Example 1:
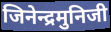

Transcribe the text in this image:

जिनेन्द्रमुनिजी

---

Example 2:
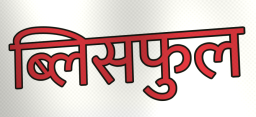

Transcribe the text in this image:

ब्लिसफुल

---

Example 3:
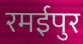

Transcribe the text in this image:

रमईपुर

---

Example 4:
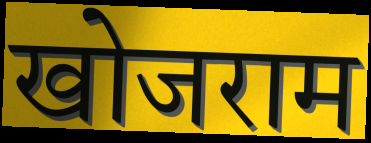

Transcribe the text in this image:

खोजराम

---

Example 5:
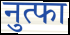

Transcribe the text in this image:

नुत्फा